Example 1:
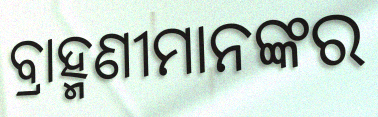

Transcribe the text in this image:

ବ୍ରାହ୍ମଣୀମାନଙ୍କର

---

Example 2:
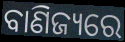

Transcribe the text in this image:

ବାଣିଜ୍ୟରେ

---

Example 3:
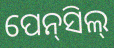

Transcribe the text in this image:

ପେନ୍‌ସିଲ୍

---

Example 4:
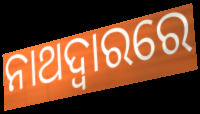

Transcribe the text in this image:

ନାଥଦ୍ୱାରରେ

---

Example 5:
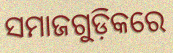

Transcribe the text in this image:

ସମାଜଗୁଡ଼ିକରେ